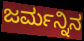
ಜರ್ಮನ್ನಿನ